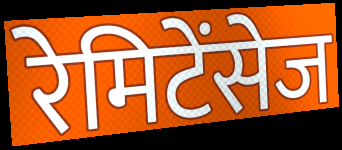
रेमिटेंसेज